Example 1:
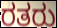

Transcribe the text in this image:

ರತರು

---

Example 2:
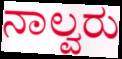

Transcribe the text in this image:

ನಾಲ್ವರು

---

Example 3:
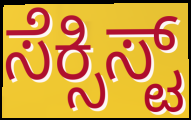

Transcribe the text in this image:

ಸೆಕ್ಸಿಸ್ಟ್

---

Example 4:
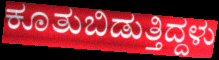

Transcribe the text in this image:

ಕೂತುಬಿಡುತ್ತಿದ್ದಳು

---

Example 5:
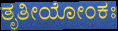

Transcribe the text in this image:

ತೃತೀಯೋಂಕಃ